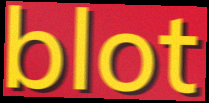
blot